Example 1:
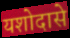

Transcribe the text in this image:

यशोदासे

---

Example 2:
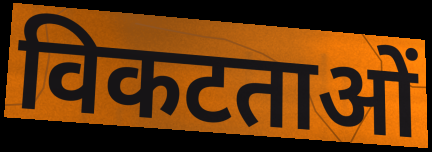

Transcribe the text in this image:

विकटताओं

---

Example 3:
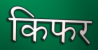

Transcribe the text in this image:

किफर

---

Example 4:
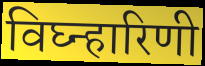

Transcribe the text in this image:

विघ्न्हारिणी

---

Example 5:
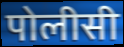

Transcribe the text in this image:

पोलीसी